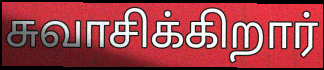
சுவாசிக்கிறார்